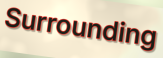
Surrounding